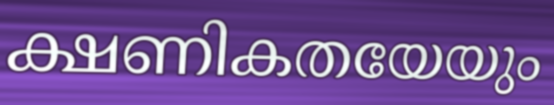
ക്ഷണികതയേയും